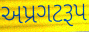
અપ્રગટરૂપ